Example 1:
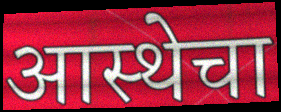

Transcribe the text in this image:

आस्थेचा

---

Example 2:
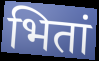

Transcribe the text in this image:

भितां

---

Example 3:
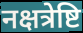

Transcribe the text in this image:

नक्षत्रेष्टि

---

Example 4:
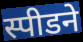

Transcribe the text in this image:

स्पीडने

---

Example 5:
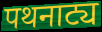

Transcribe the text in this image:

पथनाट्य